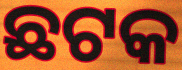
ଛଟକ